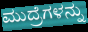
ಮುದ್ರೆಗಳನ್ನು